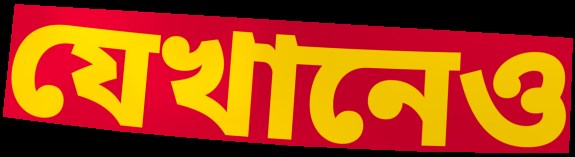
যেখানেও